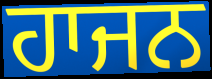
ਹਾਜਨ